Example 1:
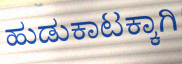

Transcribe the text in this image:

ಹುಡುಕಾಟಕ್ಕಾಗಿ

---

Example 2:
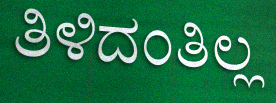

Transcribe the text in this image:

ತಿಳಿದಂತಿಲ್ಲ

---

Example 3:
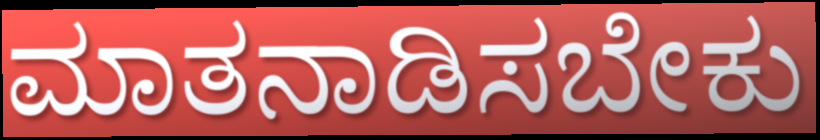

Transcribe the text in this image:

ಮಾತನಾಡಿಸಬೇಕು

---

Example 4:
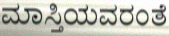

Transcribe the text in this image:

ಮಾಸ್ತಿಯವರಂತೆ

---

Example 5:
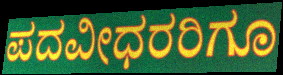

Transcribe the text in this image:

ಪದವೀಧರರಿಗೂ